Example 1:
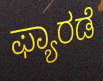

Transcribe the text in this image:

ಫ್ಯಾರಡೆ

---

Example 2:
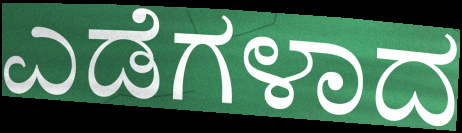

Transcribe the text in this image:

ಎಡೆಗಳಾದ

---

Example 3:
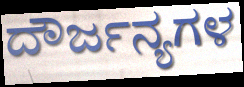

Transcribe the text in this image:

ದೌರ್ಜನ್ಯಗಳ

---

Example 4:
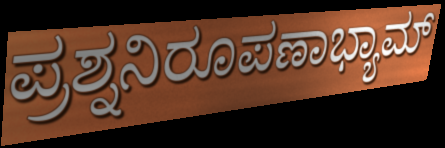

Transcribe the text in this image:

ಪ್ರಶ್ನನಿರೂಪಣಾಭ್ಯಾಮ್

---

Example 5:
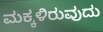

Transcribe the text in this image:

ಮಕ್ಕಳಿರುವುದು